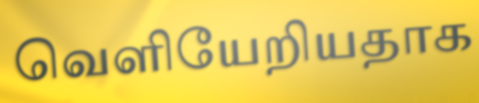
வெளியேறியதாக